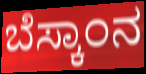
ಬೆಸ್ಕಾಂನ